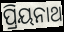
ପ୍ରିୟନାଥ